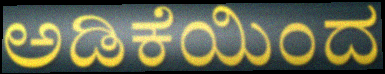
ಅಡಿಕೆಯಿಂದ